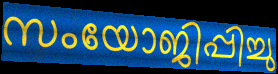
സംയോജിപ്പിച്ചു